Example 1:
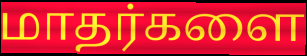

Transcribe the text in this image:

மாதர்களை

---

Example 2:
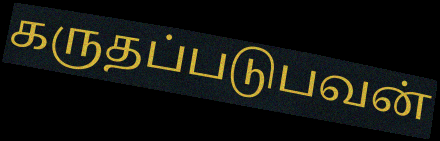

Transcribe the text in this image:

கருதப்படுபவன்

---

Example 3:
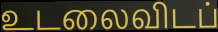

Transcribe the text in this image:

உடலைவிடப்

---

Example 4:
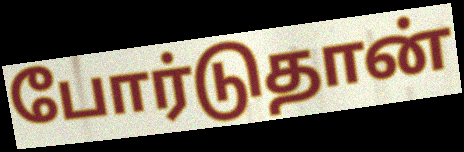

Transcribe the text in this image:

போர்டுதான்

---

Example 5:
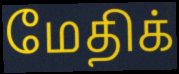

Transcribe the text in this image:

மேதிக்